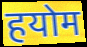
हयोम